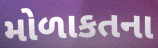
મોળાકતના